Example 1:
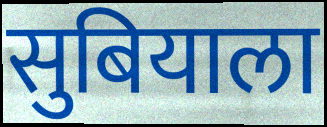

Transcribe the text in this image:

सुबियाला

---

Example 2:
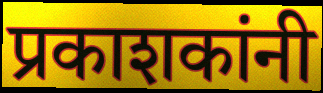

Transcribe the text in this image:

प्रकाशकांनी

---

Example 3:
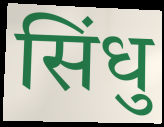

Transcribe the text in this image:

सिंधु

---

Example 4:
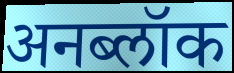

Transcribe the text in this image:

अनब्लॉक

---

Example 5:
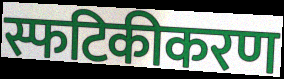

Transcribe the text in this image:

स्फटिकीकरण